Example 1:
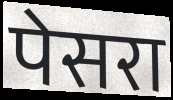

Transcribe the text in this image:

पेसरा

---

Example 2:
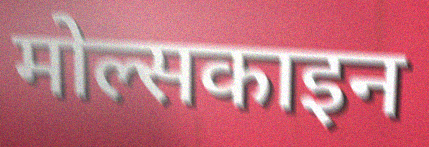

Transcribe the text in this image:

मोल्सकाइन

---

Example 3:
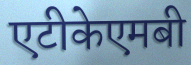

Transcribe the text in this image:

एटीकेएमबी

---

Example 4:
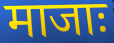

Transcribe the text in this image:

माजाः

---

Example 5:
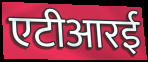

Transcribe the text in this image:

एटीआरई